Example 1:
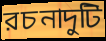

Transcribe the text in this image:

রচনাদুটি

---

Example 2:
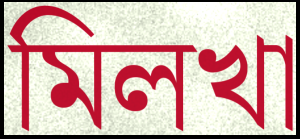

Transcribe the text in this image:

মিলখা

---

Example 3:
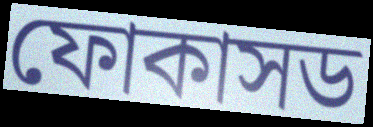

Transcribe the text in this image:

ফোকাসড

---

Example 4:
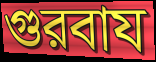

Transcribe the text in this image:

গুরবায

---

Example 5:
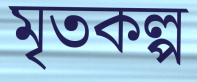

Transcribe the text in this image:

মৃতকল্প